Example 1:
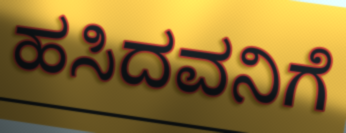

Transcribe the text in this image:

ಹಸಿದವನಿಗೆ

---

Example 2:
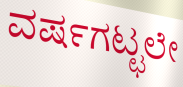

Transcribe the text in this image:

ವರ್ಷಗಟ್ಟಲೇ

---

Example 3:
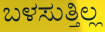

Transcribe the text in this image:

ಬಳಸುತ್ತಿಲ್ಲ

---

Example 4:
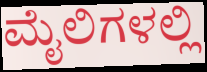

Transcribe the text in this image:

ಮೈಲಿಗಳಲ್ಲಿ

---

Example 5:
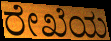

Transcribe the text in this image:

ರೇಖೆಯ